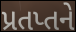
પ્રતપ્તને